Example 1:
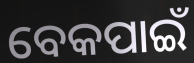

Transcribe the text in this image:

ବେକପାଇଁ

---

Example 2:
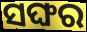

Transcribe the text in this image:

ସଙ୍ଘର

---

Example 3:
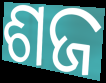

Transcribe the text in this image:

ଶଜ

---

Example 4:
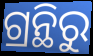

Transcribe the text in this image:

ଗ୍ରନ୍ଥିରୁ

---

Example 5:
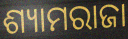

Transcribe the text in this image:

ଶ୍ୟାମରାଜା